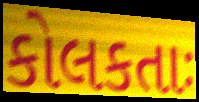
કોલકતાઃ